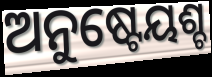
ଅନୁଷ୍ଟେୟଶ୍ଚ